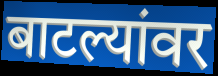
बाटल्यांवर